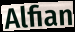
Alfian